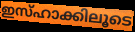
ഇസ്ഹാക്കിലൂടെ